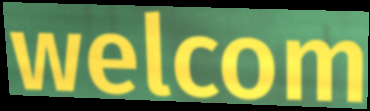
welcom